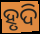
ହୃଦି